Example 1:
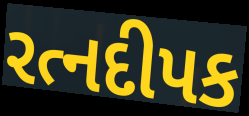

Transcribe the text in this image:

રત્નદીપક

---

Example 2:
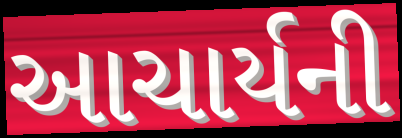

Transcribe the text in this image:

આચાર્યની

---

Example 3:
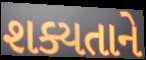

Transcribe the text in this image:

શક્યતાને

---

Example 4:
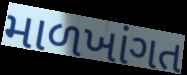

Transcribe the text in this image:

માળખાંગત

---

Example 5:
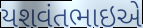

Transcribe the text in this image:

યશવંતભાઇએ